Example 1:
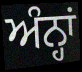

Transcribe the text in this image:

ਅੰਨ੍ਹਾਂ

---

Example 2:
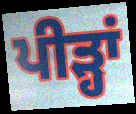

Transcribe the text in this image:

ਪੀੜ੍ਹਾਂ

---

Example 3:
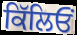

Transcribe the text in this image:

ਕਿੱਲਿਓਂ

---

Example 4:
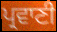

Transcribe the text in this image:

ਪ੍ਰਵਾਣੀ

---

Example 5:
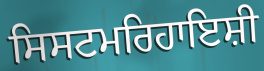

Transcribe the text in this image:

ਸਿਸਟਮਰਿਹਾਇਸ਼ੀ